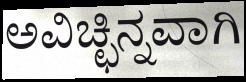
ಅವಿಚ್ಛಿನ್ನವಾಗಿ